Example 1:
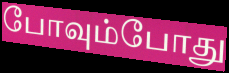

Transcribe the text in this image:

போவும்போது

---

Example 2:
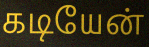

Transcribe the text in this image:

கடியேன்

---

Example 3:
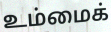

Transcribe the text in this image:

உம்மைக்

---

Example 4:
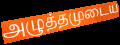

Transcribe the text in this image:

அழுத்தமுடைய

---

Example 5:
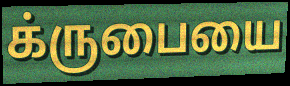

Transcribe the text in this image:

க்ருபையை